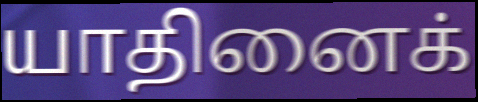
யாதினைக்